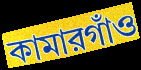
কামারগাঁও